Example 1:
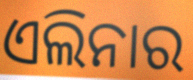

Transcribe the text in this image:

ଏଲିନାର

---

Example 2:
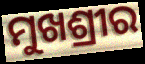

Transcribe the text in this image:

ମୁଖଶ୍ରୀର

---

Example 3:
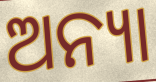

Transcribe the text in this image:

ଅନ୍ୟା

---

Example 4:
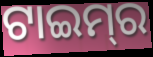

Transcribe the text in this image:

ଟାଇମ୍‌ର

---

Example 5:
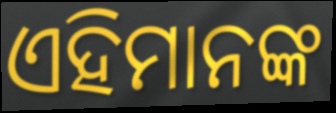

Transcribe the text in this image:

ଏହିମାନଙ୍କ